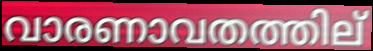
വാരണാവതത്തില്